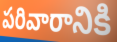
పరివారానికి